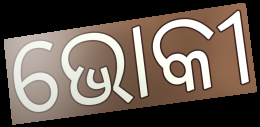
ଭୋକୀ